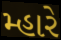
મ્હારે